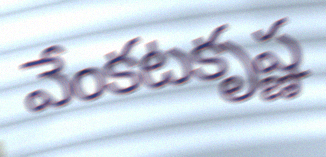
వేంకటకృష్ణ